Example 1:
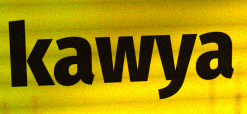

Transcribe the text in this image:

kawya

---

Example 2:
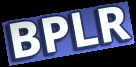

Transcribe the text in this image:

BPLR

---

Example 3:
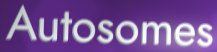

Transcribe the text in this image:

Autosomes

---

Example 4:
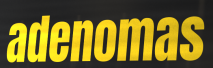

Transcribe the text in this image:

adenomas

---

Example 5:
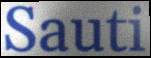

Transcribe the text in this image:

Sauti